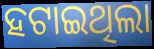
ହଟାଇଥିଲା